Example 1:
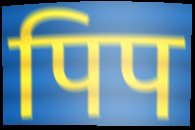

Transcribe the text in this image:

पिप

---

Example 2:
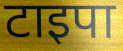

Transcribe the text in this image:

टाइपा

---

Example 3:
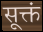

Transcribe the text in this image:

सूक्तं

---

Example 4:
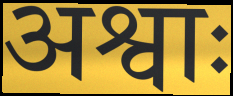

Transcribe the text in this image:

अश्वाः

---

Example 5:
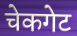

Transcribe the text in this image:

चेकगेट